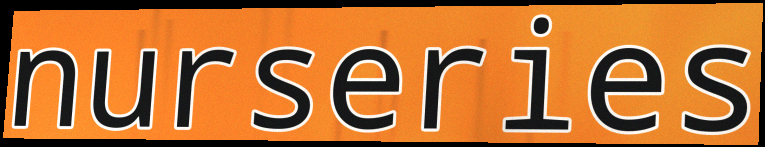
nurseries